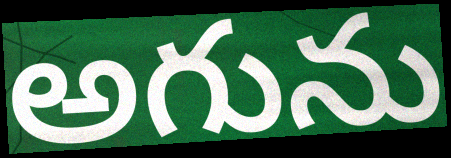
అగును